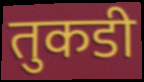
तुकडी